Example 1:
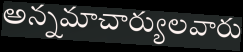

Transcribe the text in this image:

అన్నమాచార్యులవారు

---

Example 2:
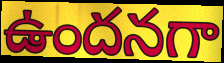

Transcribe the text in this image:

ఉందనగా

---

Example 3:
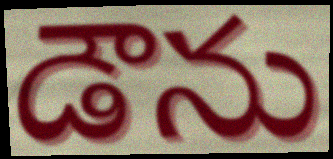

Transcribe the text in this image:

డౌను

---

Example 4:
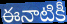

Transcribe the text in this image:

ఈనాటికీ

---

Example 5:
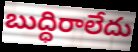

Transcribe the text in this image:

బుద్ధిరాలేదు